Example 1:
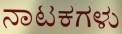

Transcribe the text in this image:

ನಾಟಕಗಳು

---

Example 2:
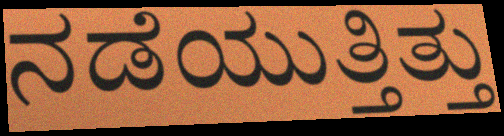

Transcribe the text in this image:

ನಡೆಯುತ್ತಿತ್ತು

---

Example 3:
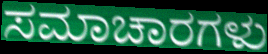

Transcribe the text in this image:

ಸಮಾಚಾರಗಳು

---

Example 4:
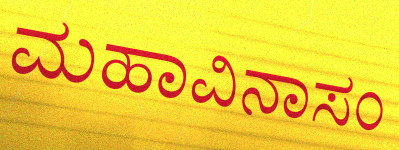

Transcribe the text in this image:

ಮಹಾವಿನಾಸಂ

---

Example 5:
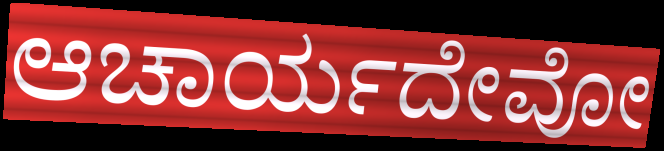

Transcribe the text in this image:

ಆಚಾರ್ಯದೇವೋ